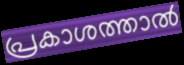
പ്രകാശത്താൽ